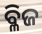
ବ୍ଳିଜ